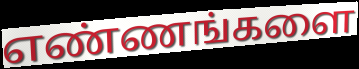
எண்ணங்களை